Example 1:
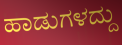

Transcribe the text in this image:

ಹಾಡುಗಳದ್ದು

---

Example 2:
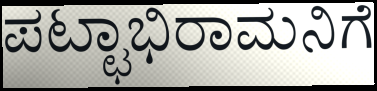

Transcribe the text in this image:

ಪಟ್ಟಾಭಿರಾಮನಿಗೆ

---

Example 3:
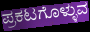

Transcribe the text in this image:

ಪ್ರಕಟಗೊಳ್ಳುವ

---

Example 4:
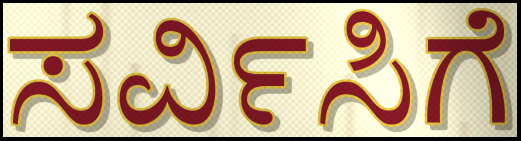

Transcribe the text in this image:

ಸರ್ವಿಸಿಗೆ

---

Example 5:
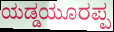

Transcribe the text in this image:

ಯಡ್ಡಯೂರಪ್ಪ